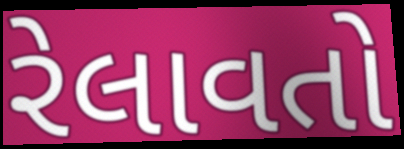
રેલાવતો